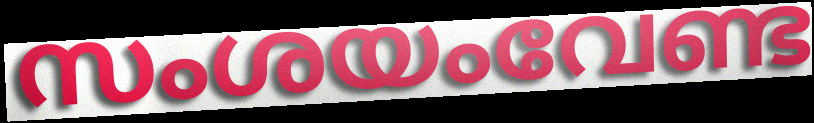
സംശയംവേണ്ട